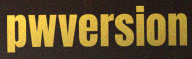
pwversion